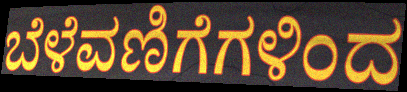
ಬೆಳೆವಣಿಗೆಗಳಿಂದ